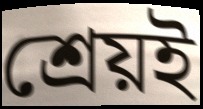
শ্রেয়ই